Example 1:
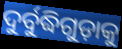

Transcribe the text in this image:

ଦୁର୍ବୁଦ୍ଧିଗୁଡ଼ାକୁ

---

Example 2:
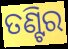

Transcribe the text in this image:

ତଣ୍ଟିର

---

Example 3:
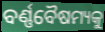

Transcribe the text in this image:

ବର୍ଣ୍ଣବୈଷମ୍ୟକୁ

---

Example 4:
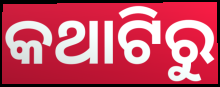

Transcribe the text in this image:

କଥାଟିରୁ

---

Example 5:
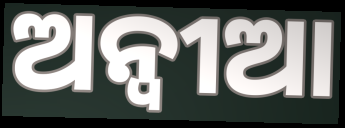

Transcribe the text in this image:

ଅନ୍ବୀଆ